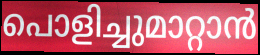
പൊളിച്ചുമാറ്റാൻ